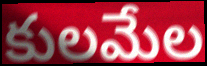
కులమేల